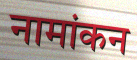
नामांकन